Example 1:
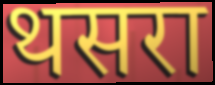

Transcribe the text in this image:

थसरा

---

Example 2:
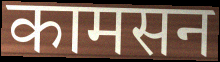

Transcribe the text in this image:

कामसन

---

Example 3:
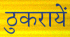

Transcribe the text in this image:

ठुकरायें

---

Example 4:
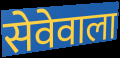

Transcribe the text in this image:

सेवेवाला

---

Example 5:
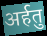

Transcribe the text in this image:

अर्हतु